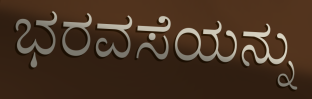
ಭರವಸೆಯನ್ನು